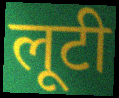
लूटी